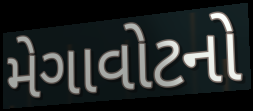
મેગાવોટનો